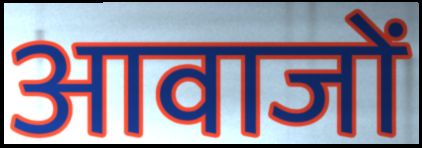
आवाजों